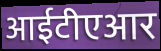
आईटीएआर